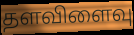
தளவிளைவு